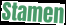
Stamen